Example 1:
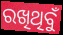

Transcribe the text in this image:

ରଖିଥିବୁଁ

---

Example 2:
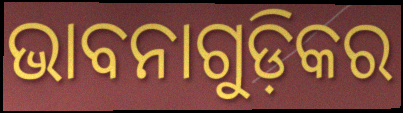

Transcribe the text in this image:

ଭାବନାଗୁଡ଼ିକର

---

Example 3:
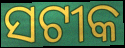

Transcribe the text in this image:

ସଟୀକ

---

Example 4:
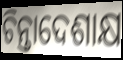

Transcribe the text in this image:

ଚିନ୍ତାଦେଶାକ୍ଷ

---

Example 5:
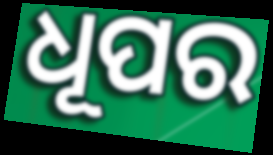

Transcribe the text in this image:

ଧୂପର